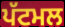
ਪੱਟਮਲ